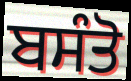
ਬਸੰਤੋ